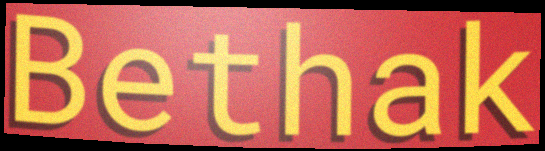
Bethak